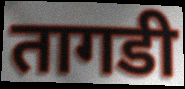
तागडी